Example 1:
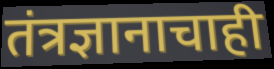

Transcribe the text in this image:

तंत्रज्ञानाचाही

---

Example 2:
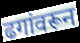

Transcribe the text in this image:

ढगांवरून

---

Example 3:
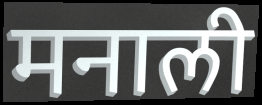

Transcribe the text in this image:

मनाली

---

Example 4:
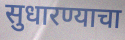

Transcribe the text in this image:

सुधारण्याचा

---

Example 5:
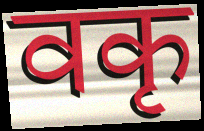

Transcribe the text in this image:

वकृ